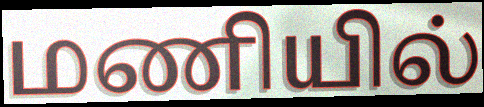
மணியில்